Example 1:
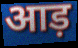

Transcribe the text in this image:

आड़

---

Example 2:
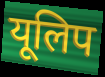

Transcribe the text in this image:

यूलिप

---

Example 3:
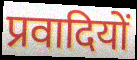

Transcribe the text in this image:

प्रवादियों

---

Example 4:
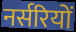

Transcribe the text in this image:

नर्सरियों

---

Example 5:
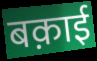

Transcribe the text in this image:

बक़ाई